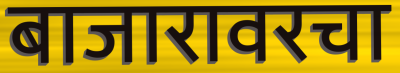
बाजारावरचा